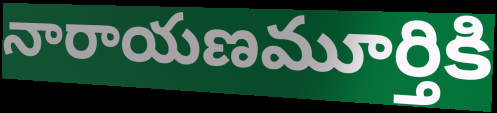
నారాయణమూర్తికి